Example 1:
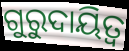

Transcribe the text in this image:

ଗୁରୁଦାୟିତ୍ୱ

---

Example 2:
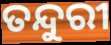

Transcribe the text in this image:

ତନ୍ଦୁରୀ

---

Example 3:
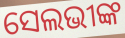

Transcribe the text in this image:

ସେଲଭୀଙ୍କ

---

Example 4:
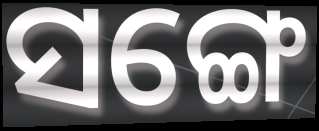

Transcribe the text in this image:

ସଙ୍ଗେ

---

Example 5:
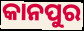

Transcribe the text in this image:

କାନପୁର